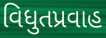
વિધુતપ્રવાહ